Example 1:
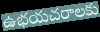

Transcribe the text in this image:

ఉభయచరాలకు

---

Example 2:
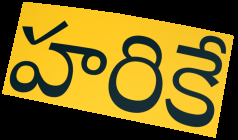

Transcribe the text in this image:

హరికే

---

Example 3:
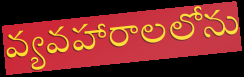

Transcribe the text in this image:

వ్యవహారాలలోను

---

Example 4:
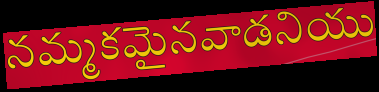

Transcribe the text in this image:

నమ్మకమైనవాడనియు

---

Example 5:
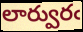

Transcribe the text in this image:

లార్వురఁ